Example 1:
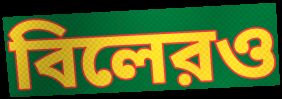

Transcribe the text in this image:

বিলেরও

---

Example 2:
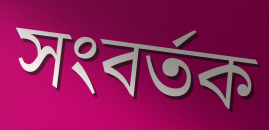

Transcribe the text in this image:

সংবর্তক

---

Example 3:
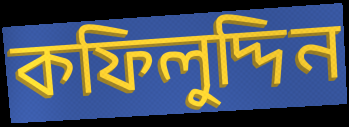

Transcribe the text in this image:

কফিলুদ্দিন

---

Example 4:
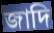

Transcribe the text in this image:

জাদি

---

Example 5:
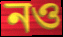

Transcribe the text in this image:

নও